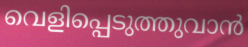
വെളിപ്പെടുത്തുവാൻ